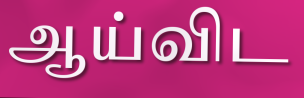
ஆய்விட